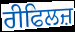
ਰੀਫਿਲਜ਼